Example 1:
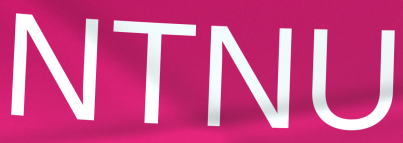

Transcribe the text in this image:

NTNU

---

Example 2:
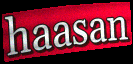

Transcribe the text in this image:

haasan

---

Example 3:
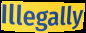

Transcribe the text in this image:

Illegally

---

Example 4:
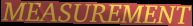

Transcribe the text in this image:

MEASUREMENT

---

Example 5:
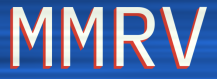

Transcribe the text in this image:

MMRV